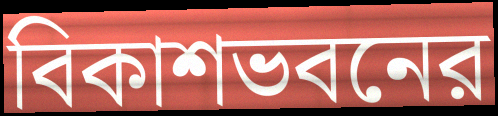
বিকাশভবনের